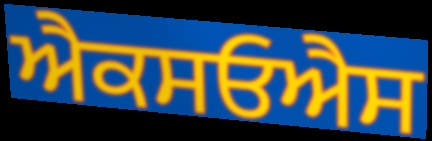
ਐਕਸਓਐਸ